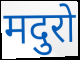
मदुरो